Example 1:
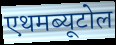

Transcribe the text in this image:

एथमब्यूटोल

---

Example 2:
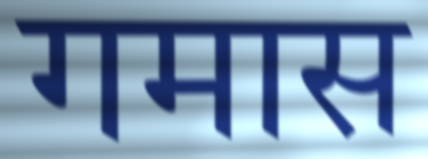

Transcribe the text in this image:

गमास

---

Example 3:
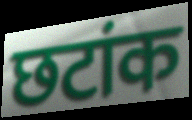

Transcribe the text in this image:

छटांक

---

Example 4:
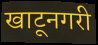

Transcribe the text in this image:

खाटूनगरी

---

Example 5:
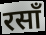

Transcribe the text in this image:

रसाँ